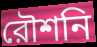
রৌশনি